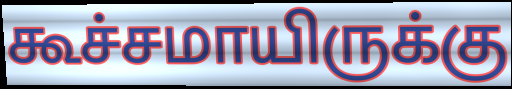
கூச்சமாயிருக்கு